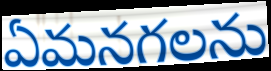
ఏమనగలను